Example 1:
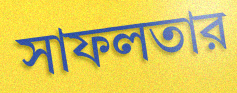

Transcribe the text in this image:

সাফলতার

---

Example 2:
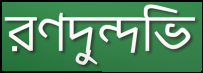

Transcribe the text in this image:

রণদুন্দভি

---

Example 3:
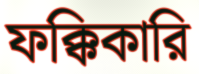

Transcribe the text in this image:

ফক্কিকারি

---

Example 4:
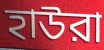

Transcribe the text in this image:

হাউরা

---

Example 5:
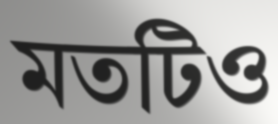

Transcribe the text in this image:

মতটিও